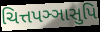
ચિત્તપઞ્ઞાસુપિ